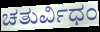
ಚತುರ್ವಿಧಂ